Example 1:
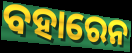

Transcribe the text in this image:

ବହାରେନ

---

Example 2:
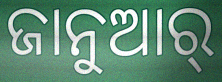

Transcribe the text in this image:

ଜାନୁଆର୍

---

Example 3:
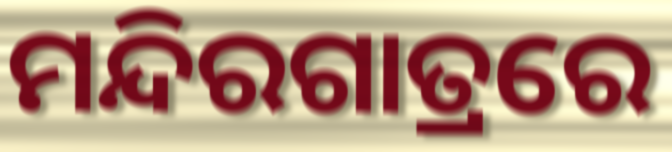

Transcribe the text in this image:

ମନ୍ଦିରଗାତ୍ରରେ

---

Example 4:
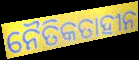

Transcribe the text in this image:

ନୈତିକତାହୀନ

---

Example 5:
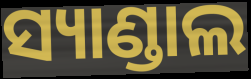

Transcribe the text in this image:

ସ୍ୟାଣ୍ଡାଲ